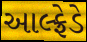
આલ્ફ્રેડે